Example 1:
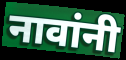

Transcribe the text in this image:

नावांनी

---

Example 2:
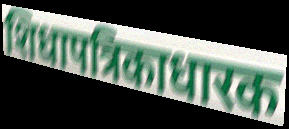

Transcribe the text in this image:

शिधापत्रिकाधारक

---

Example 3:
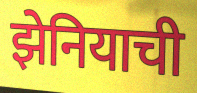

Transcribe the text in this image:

झेनियाची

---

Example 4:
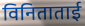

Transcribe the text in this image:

विनिताताई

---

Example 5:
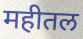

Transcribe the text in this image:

महीतल